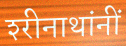
श्रीनाथांनीं